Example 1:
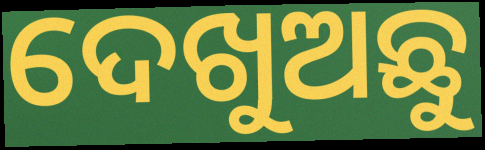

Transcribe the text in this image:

ଦେଖୁଅଛୁ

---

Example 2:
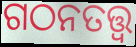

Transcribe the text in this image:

ଗଠନତତ୍ତ୍ୱ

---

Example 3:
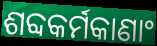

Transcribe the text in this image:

ଶବ୍ଦକର୍ମକାଣାଂ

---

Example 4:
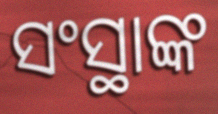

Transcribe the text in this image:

ସଂସ୍ଥାଙ୍କ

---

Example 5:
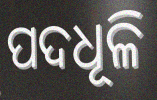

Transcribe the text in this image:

ପଦଧୂଳି